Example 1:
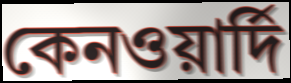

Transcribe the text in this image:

কেনওয়ার্দি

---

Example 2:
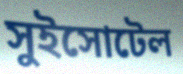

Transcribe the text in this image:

সুইসোটেল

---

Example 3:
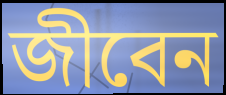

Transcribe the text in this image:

জীবেন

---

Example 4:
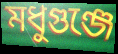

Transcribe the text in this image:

মধুগুঞ্জে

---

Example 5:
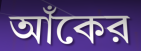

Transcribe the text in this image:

আঁকের